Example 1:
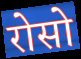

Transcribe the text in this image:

रोसो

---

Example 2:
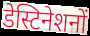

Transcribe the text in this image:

डेस्टिनेशनों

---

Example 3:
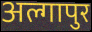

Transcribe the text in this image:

अल्गापुर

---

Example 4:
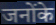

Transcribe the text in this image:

जनोंके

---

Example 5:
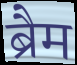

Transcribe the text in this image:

ब्रैम